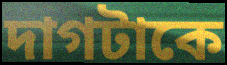
দাগটাকে